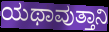
ಯಥಾವುತ್ತಾನಿ